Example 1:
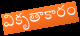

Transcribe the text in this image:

వికృతాకారం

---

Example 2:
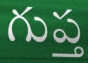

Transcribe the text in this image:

గుప్త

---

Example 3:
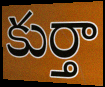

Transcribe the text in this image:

కుర్తా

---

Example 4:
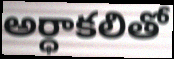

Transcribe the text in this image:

అర్ధాకలితో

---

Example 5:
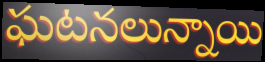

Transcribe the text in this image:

ఘటనలున్నాయి